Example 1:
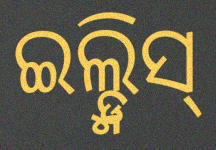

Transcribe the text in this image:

ଇଲ୍ଡ୍ମିସ୍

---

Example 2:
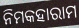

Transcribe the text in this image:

ନିମକହାରାମ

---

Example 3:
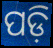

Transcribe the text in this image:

ପଡ଼ି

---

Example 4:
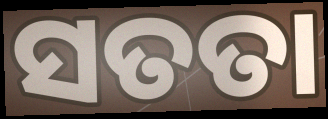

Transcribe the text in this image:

ସତତା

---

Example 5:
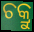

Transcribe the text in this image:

ଚକ୍ରୁ